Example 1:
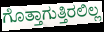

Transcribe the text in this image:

ಗೊತ್ತಾಗುತ್ತಿರಲಿಲ್ಲ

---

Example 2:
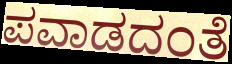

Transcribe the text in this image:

ಪವಾಡದಂತೆ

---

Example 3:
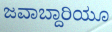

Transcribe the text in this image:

ಜವಾಬ್ದಾರಿಯೂ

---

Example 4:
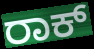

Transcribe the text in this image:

ರಾಕ್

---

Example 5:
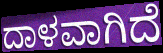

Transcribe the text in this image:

ದಾಳವಾಗಿದೆ